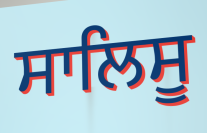
ਸਾਲਿਸੂ